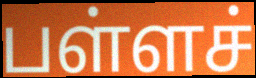
பள்ளச்